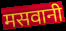
मसवानी